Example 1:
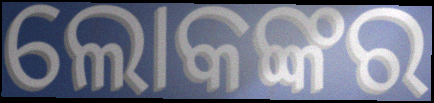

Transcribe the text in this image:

ଲୋକଙ୍କର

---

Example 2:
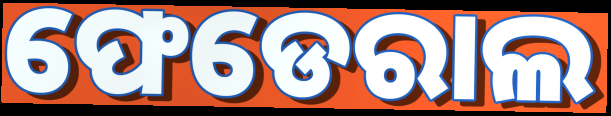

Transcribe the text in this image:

ଫେଡେରାଲ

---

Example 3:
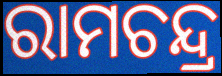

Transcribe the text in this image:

ରାମଚନ୍ଦ୍ର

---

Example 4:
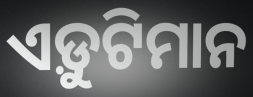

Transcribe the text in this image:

ଏଡ଼ୁଟିମାନ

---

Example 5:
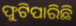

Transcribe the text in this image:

ଫୁଟିପାରିଛି